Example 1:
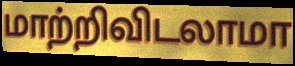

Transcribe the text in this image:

மாற்றிவிடலாமா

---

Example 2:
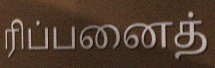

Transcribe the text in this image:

ரிப்பனைத்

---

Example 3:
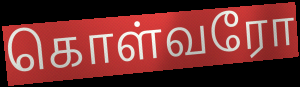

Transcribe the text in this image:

கொள்வரோ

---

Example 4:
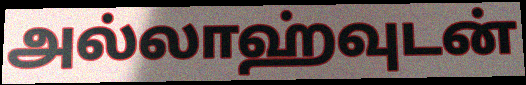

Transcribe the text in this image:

அல்லாஹ்வுடன்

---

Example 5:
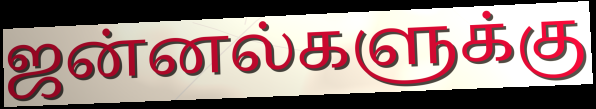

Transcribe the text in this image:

ஜன்னல்களுக்கு